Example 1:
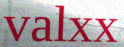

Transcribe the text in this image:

valxx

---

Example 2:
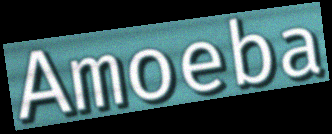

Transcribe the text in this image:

Amoeba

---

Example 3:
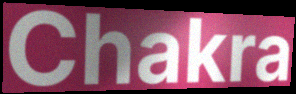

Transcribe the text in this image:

Chakra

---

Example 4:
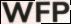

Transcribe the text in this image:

WFP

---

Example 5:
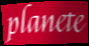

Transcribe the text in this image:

planete